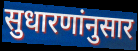
सुधारणांनुसार